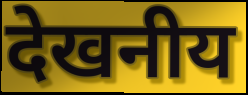
देखनीय